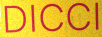
DICCI